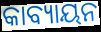
କାବ୍ୟାୟନ